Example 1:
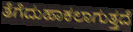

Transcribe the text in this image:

ತೆಗೆದುಹಾಕಲಾಗುತ್ತದೆ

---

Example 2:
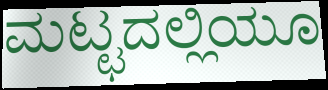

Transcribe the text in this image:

ಮಟ್ಟದಲ್ಲಿಯೂ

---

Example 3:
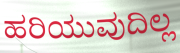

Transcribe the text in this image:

ಹರಿಯುವುದಿಲ್ಲ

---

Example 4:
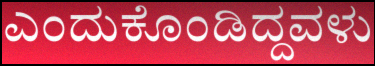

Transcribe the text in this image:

ಎಂದುಕೊಂಡಿದ್ದವಳು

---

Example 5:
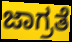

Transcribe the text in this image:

ಜಾಗ್ರತೆ